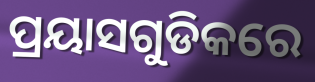
ପ୍ରୟାସଗୁଡିକରେ